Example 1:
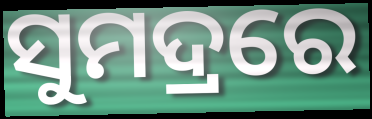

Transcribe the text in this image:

ସୁମଦ୍ରରେ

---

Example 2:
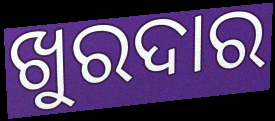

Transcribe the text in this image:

ଖୁରଦାର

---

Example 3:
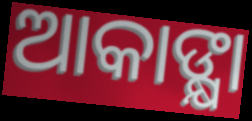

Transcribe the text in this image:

ଆକାଙ୍କ୍ଷା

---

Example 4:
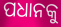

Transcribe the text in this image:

ପଧାନକୁ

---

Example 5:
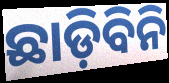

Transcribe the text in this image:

ଛାଡ଼ିବିନି